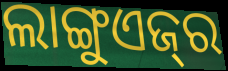
ଲାଙ୍ଗୁଏଜ୍‌ର